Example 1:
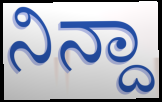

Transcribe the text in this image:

ನಿನ್ದಾ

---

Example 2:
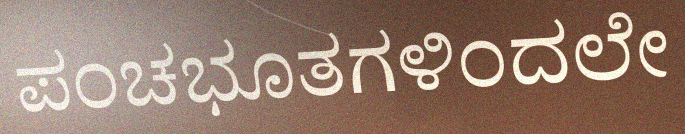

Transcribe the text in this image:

ಪಂಚಭೂತಗಳಿಂದಲೇ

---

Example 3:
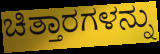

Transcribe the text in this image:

ಚಿತ್ತಾರಗಳನ್ನು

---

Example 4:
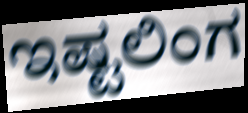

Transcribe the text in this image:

ಇಷ್ಟಲಿಂಗ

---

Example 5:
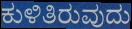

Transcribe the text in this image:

ಕುಳಿತಿರುವುದು